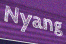
Nyang